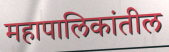
महापालिकांतील